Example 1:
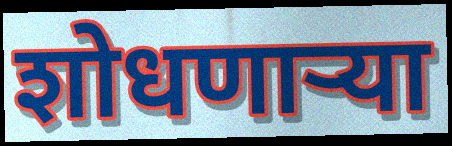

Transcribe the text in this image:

शोधणाऱ्या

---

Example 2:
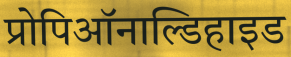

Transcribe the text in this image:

प्रोपिऑनाल्डिहाइड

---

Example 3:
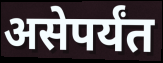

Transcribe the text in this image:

असेपर्यंत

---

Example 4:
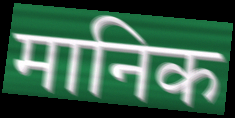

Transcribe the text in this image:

मानिक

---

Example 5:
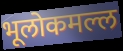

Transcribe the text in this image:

भूलोकमल्ल